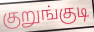
குறுங்குடி